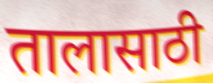
तालासाठी